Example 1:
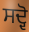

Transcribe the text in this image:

ਸਦ੍ਦੋ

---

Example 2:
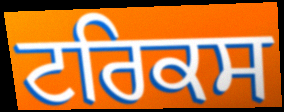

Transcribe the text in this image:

ਟਰਿਕਸ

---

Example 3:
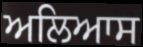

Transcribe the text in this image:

ਅਲਿਆਸ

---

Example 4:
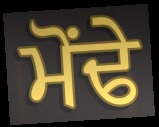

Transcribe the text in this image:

ਮੋਂਢੇ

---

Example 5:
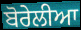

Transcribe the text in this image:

ਬੋਰੇਲੀਆ